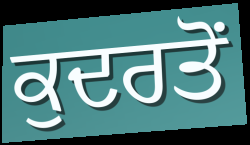
ਕੁਦਰਤੋਂ